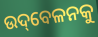
ଉଦ୍‌ବେଳନକୁ